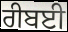
ਰੀਬਈ